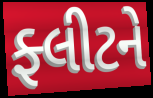
ફ્લીટને